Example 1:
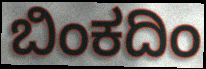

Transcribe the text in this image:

ಬಿಂಕದಿಂ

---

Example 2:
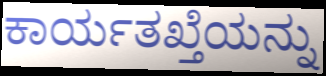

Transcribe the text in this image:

ಕಾರ್ಯತಖ್ತೆಯನ್ನು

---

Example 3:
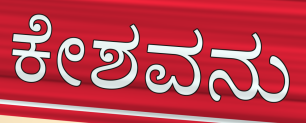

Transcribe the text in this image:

ಕೇಶವನು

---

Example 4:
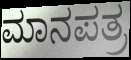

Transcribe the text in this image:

ಮಾನಪತ್ರ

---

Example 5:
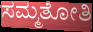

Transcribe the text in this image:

ಸಮ್ಮತೋತಿ